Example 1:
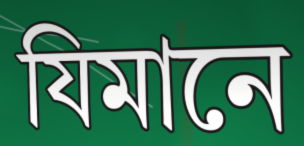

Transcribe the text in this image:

যিমানে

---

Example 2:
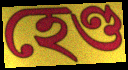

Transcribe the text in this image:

হেণ্ড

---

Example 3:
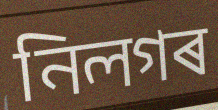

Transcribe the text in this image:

নিলগৰ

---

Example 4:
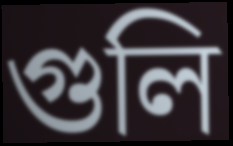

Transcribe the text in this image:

গুলি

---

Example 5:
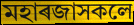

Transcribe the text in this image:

মহাৰজাসকলে